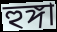
হুঙ্গা